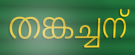
തങ്കച്ചന്